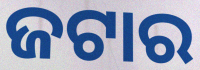
ଜଟାର